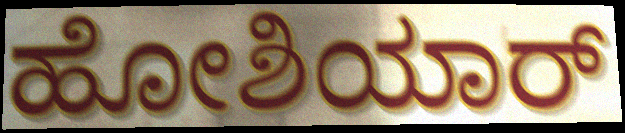
ಹೋಶಿಯಾರ್